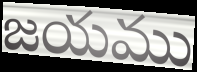
జయము